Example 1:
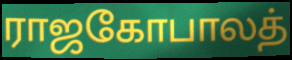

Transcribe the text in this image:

ராஜகோபாலத்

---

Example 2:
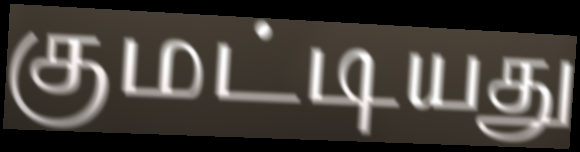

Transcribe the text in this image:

குமட்டியது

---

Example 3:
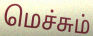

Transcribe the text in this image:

மெச்சும்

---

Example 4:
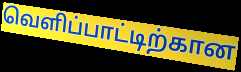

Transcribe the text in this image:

வெளிப்பாட்டிற்கான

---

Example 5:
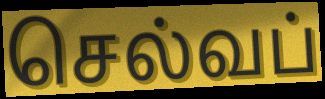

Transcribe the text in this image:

செல்வப்